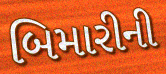
બિમારીની